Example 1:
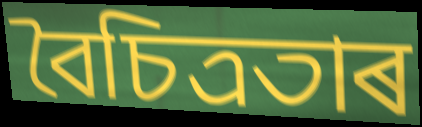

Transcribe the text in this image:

বৈচিত্ৰতাৰ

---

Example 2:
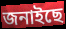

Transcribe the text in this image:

জনাইছে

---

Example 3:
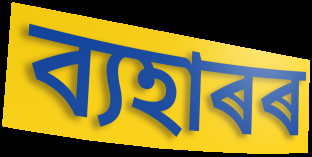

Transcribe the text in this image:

ব্যহাৰৰ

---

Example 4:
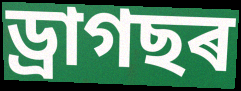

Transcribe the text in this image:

ড্ৰাগছৰ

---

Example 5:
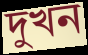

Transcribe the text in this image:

দুখন